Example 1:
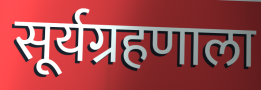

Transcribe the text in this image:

सूर्यग्रहणाला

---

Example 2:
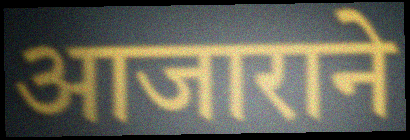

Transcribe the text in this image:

आजाराने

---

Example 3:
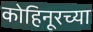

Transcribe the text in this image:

कोहिनूरच्या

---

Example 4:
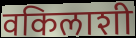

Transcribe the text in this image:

वकिलाशी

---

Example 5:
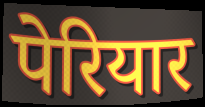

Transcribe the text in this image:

पेरियार